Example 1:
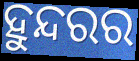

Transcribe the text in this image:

ହୁନ୍ଦରର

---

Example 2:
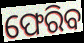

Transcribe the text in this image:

ଫେରିବ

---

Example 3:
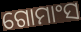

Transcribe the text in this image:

ଗୋମାଂସ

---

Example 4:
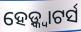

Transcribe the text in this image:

ହେଡ଼୍କ୍ୱାଟର୍ସ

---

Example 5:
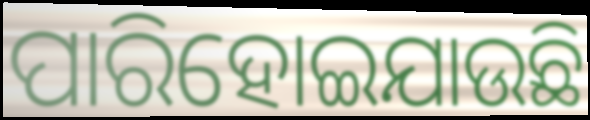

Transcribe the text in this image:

ପାରିହୋଇଯାଉଛି